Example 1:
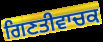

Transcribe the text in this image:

ਗਿਣਤੀਵਾਚਕ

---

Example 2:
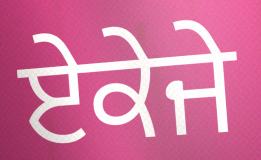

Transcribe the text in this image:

ਏਕੇਜੇ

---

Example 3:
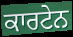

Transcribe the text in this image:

ਕਾਰਟੇਨ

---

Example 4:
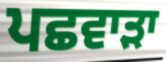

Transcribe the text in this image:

ਪਛਵਾੜਾ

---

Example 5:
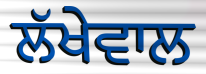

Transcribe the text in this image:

ਲੱਖੇਵਾਲ